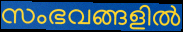
സംഭവങ്ങളിൽ